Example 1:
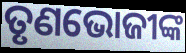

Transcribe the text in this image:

ତୃଣଭୋଜୀଙ୍କ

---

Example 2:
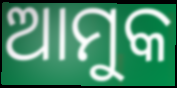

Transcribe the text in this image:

ଆମୁକ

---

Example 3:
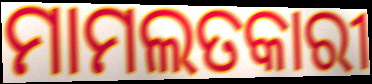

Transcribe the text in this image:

ମାମଲତକାରୀ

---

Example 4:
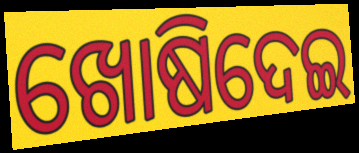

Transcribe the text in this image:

ଖୋଷିଦେଇ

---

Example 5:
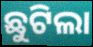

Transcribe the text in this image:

ଛୁଟିଲା